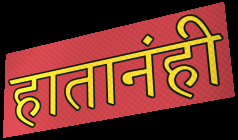
हातानंही